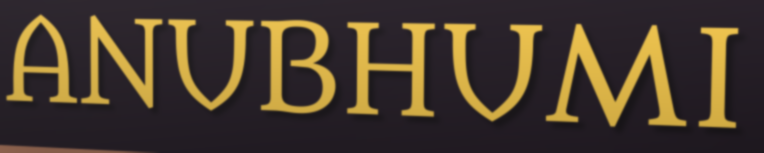
ANUBHUMI